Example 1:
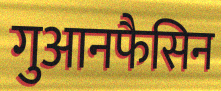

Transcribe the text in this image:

गुआनफैसिन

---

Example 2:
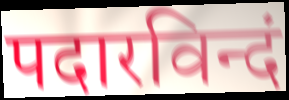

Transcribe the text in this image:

पदारविन्दं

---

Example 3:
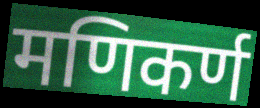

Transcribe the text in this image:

मणिकर्ण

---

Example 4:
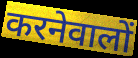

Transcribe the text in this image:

करनेवालों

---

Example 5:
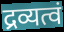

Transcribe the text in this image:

द्रव्यत्वं